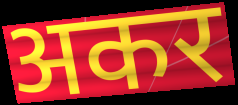
अकर